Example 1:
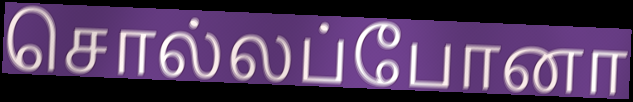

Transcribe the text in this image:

சொல்லப்போனா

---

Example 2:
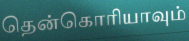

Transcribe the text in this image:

தென்கொரியாவும்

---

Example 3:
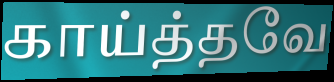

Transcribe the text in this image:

காய்த்தவே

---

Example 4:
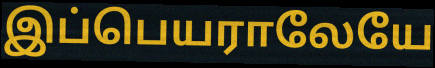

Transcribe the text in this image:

இப்பெயராலேயே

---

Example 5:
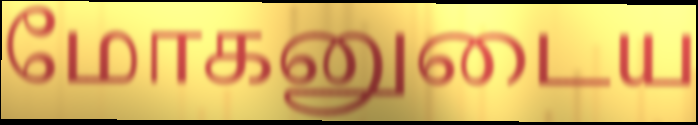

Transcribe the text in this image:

மோகனுடைய